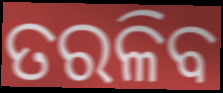
ତରଳିବ